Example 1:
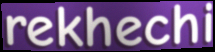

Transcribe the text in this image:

rekhechi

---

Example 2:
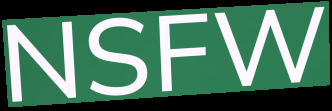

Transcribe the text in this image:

NSFW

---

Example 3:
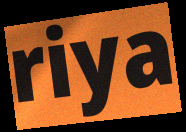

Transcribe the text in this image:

riya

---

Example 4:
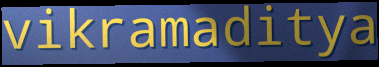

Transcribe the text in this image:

vikramaditya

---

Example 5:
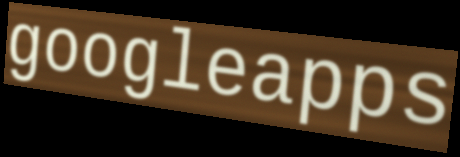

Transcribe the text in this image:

googleapps